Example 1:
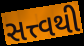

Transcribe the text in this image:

સત્ત્વથી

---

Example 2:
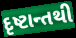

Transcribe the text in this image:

દૃષ્ટાન્તથી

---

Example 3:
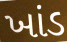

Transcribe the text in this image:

ખાંડ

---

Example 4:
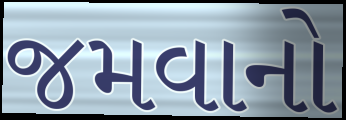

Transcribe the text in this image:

જમવાનો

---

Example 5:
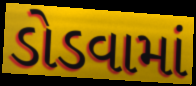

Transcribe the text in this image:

ડોડવામાં